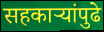
सहकाऱ्यांपुढे